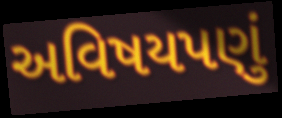
અવિષયપણું